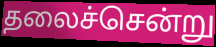
தலைச்சென்று